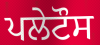
ਪਲੇਟੌਸ